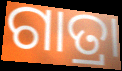
ଗାତ୍ରା